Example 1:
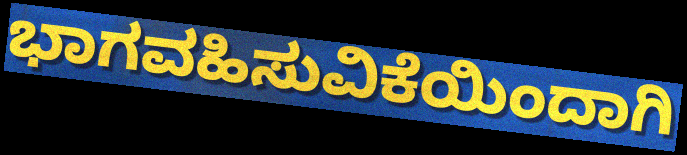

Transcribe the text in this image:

ಭಾಗವಹಿಸುವಿಕೆಯಿಂದಾಗಿ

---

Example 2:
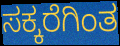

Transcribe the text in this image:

ಸಕ್ಕರೆಗಿಂತ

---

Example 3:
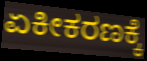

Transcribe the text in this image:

ಏಕೀಕರಣಕ್ಕೆ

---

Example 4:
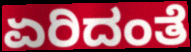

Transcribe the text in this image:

ಏರಿದಂತೆ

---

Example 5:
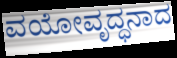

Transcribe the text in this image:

ವಯೋವೃದ್ಧನಾದ